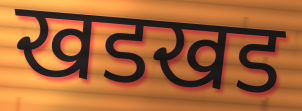
खडखड